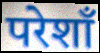
परेशाँ